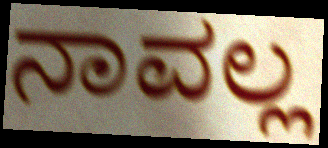
ನಾವಲ್ಲ